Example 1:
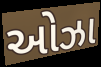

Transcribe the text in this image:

ઓઝા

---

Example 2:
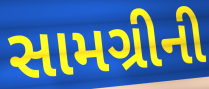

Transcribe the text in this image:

સામગ્રીની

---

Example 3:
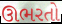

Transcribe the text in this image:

ઊભરતો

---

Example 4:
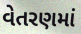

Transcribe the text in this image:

વેતરણમાં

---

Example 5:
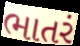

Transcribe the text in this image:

ભાતરં